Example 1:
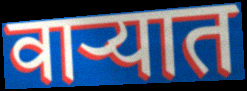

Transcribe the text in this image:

वाऱ्यात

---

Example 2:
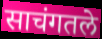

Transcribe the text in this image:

साचंगतले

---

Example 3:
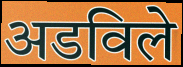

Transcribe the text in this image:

अडविले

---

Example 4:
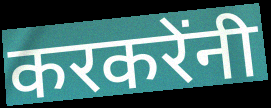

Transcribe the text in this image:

करकरेंनी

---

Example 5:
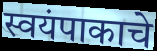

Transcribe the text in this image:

स्वयंपाकाचे